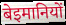
बेइमानियों